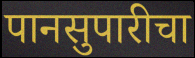
पानसुपारीचा